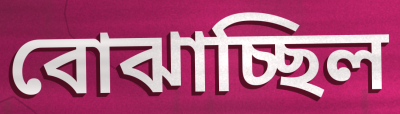
বোঝাচ্ছিল